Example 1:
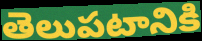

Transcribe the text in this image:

తెలుపటానికి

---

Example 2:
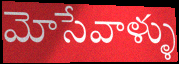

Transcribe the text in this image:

మోసేవాళ్ళు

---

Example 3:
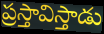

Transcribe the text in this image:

ప్రస్తావిస్తాడు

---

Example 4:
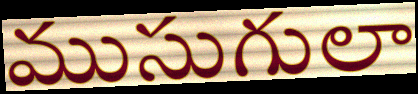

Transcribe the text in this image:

ముసుగులా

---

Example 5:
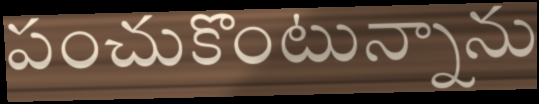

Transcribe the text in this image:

పంచుకొంటున్నాను